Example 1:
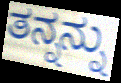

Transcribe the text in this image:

ತನ್ನನ್ನು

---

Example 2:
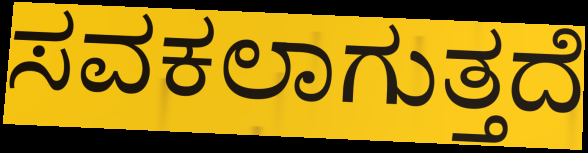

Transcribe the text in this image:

ಸವಕಲಾಗುತ್ತದೆ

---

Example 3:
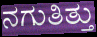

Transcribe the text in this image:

ನಗುತಿತ್ತು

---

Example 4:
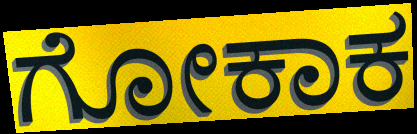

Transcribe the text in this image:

ಗೋಕಾಕ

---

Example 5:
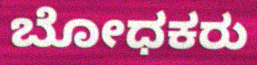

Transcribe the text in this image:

ಬೋಧಕರು